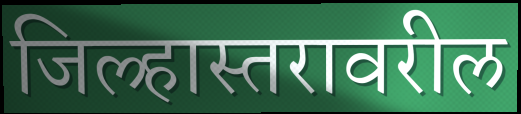
जिल्हास्तरावरील